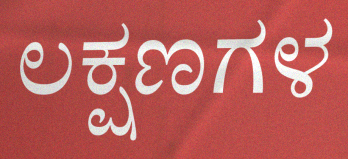
ಲಕ್ಷಣಗಳ